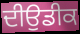
ਦੀਉਡੀਕ